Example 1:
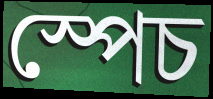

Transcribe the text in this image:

স্পেচ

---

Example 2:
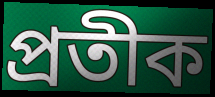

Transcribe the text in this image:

প্ৰতীক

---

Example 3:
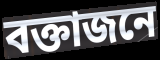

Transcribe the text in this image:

বক্তাজনে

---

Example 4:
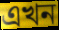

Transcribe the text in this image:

এখন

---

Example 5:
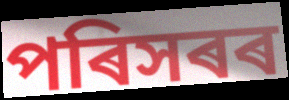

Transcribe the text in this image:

পৰিসৰৰ